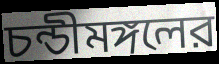
চন্ডীমঙ্গলের